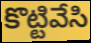
కొట్టివేసి